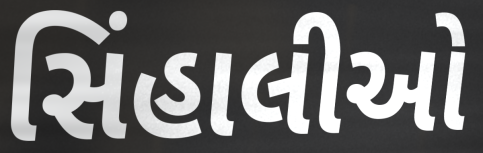
સિંહાલીઓ